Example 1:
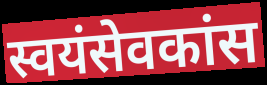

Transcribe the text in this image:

स्वयंसेवकांस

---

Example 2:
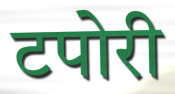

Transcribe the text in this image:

टपोरी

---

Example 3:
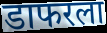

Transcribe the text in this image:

डाफरला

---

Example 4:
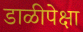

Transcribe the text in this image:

डाळीपेक्षा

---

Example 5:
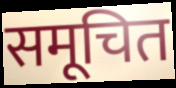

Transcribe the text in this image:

समूचित